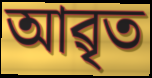
আৱৃত